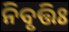
ନିବୃତ୍ତିଃ